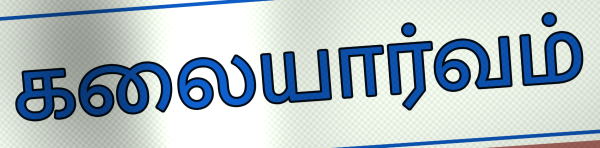
கலையார்வம்